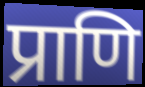
प्राणि